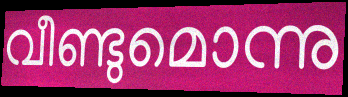
വീണ്ടുമൊന്നു